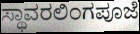
ಸ್ಥಾವರಲಿಂಗಪೂಜೆ